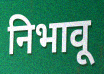
निभावू